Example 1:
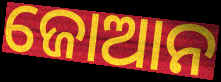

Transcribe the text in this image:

ଜୋଆନ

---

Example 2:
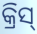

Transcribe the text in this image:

କ୍ରିସ୍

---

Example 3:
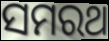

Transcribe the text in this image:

ସମରଥ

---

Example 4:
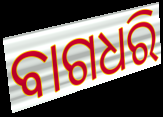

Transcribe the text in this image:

ବାଗଧରି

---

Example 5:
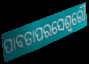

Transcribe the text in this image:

ପାବତାପରସେଶ୍ୱରୌ